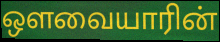
ஔவையாரின்